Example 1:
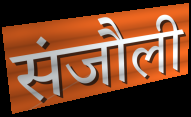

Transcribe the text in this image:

संजौली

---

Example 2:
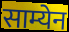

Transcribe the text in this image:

साम्येन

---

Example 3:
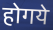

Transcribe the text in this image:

होगये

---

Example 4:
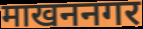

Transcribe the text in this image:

माखननगर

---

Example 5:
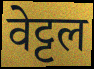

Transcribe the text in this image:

वेट्टल